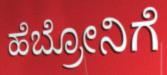
ಹೆಬ್ರೋನಿಗೆ